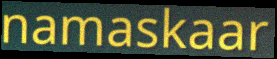
namaskaar